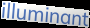
illuminant